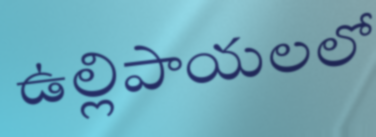
ఉల్లిపాయలలో